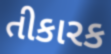
તીકારક